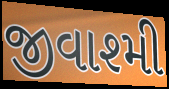
જીવાશ્મી